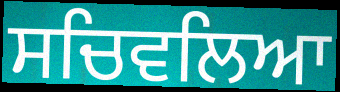
ਸਚਿਵਲਿਆ